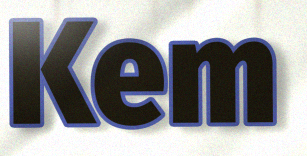
Kem